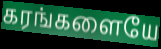
கரங்களையே